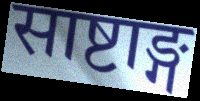
साष्टाङ्ग